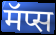
मॅप्स